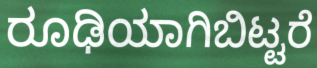
ರೂಢಿಯಾಗಿಬಿಟ್ಟರೆ